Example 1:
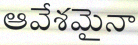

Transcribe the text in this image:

ఆవేశమైనా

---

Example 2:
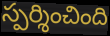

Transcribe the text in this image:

స్పర్శించింది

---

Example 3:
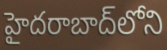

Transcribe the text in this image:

హైదరాబాద్‌లోని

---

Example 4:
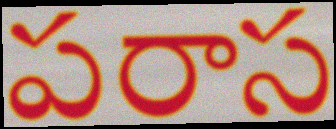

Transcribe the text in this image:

పరాస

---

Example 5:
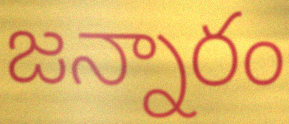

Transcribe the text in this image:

జన్నారం